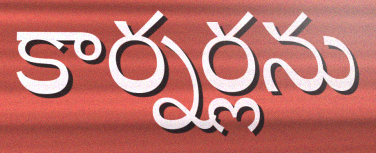
కార్నర్లను